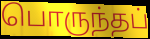
பொருந்தப்